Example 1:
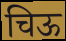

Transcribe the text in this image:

चिऊ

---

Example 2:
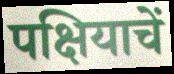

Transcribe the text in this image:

पक्षियाचें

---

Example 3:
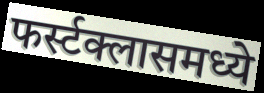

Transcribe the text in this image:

फर्स्टक्लासमध्ये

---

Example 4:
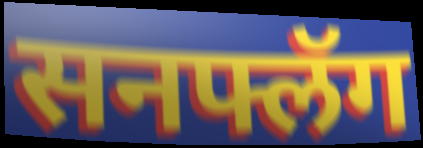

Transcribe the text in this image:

सनफ्लॅग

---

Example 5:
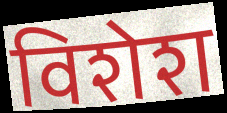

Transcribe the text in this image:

विशेश